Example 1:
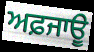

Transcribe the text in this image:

ਅਫ਼ਜਾਊ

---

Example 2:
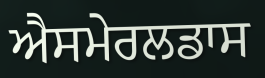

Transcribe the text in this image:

ਐਸਮੇਰਲਡਾਸ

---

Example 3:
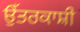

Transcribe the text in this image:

ਉੱਤਰਕਾਸ਼ੀ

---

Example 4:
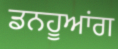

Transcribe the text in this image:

ਡਨਹੂਆਂਗ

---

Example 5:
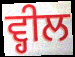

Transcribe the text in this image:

ਵ੍ਹੀਲ